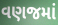
વણજમાં